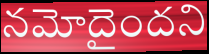
నమోదైందని